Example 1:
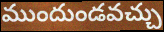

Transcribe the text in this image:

ముందుండవచ్చు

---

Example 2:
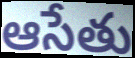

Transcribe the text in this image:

ఆసేతు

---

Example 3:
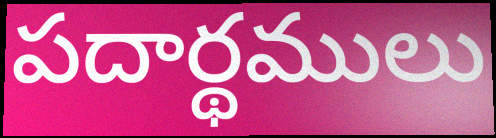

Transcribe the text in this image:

పదార్థములు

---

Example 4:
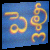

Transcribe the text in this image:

పెళ్లీ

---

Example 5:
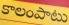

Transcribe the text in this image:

కాలంపాటు